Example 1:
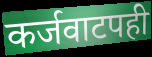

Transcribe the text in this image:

कर्जवाटपही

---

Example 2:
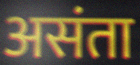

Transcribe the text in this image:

असंता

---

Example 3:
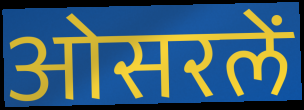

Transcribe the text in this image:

ओसरलें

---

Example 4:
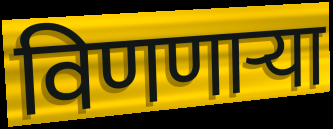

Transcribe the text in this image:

विणणाऱ्या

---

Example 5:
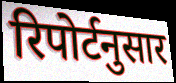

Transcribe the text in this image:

रिपोर्टनुसार